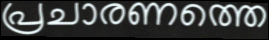
പ്രചാരണത്തെ